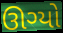
ઊગ્યો